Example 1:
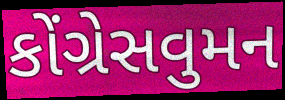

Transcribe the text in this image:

કોંગ્રેસવુમન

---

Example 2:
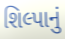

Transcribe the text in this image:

શિલ્પાનું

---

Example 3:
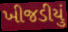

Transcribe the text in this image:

ખીજડીયું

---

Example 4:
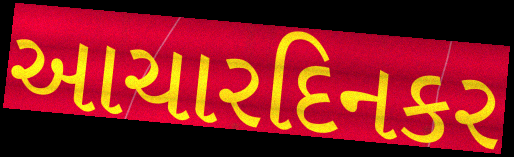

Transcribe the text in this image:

આચારદિનકર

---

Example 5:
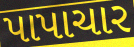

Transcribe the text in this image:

પાપાચાર